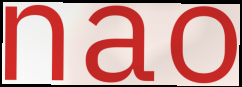
nao